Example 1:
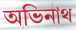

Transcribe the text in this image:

অভিনাথ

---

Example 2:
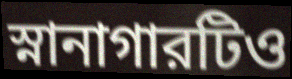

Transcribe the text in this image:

স্নানাগারটিও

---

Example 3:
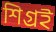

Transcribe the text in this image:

শিগ্রই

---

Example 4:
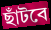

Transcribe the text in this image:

ছাঁটবে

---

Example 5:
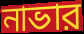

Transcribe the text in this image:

নাভার